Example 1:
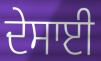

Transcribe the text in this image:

ਦੇਸਾਈ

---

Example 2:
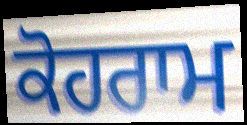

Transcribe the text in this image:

ਕੋਹਰਾਮ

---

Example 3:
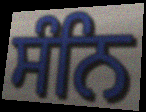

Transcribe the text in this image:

ਸੰਨਿ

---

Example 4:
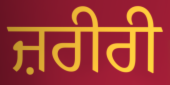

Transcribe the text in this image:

ਜ਼ਰੀਰੀ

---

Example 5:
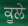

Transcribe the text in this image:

ਕੂਲੇ